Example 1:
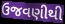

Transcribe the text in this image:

ઉજવણીથી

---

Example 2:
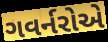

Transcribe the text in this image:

ગવર્નરોએ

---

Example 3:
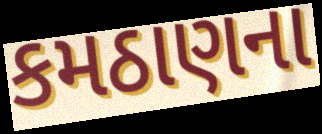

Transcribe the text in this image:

કમઠાણના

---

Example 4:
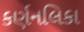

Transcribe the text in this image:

કર્ણનલિકા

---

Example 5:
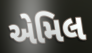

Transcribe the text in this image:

એમિલ